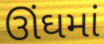
ઊંઘમાં